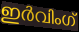
ഇർവിംഗ്